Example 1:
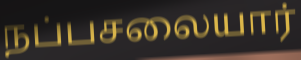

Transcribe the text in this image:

நப்பசலையார்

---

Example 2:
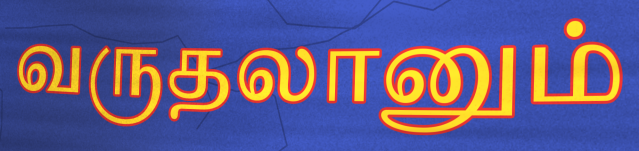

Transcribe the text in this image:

வருதலானும்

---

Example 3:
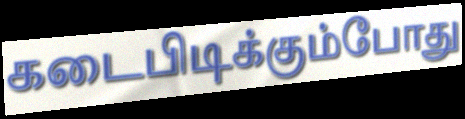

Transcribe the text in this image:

கடைபிடிக்கும்போது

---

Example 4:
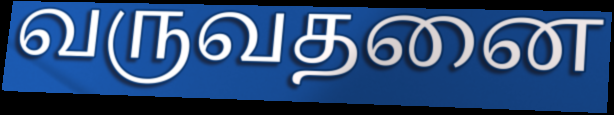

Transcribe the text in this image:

வருவதனை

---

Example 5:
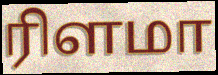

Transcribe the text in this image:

ரிளமா